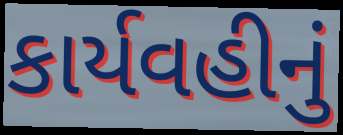
કાર્યવહીનું